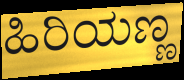
ಹಿರಿಯಣ್ಣ